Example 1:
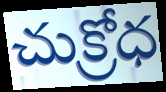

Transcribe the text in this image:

చుక్రోధ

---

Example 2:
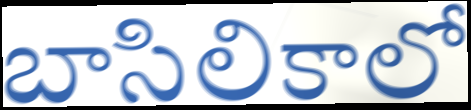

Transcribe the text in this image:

బాసిలికాలో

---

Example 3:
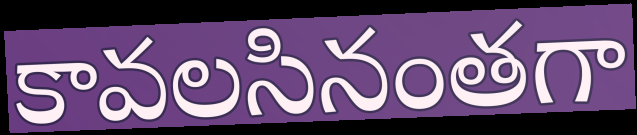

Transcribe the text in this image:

కావలసినంతగా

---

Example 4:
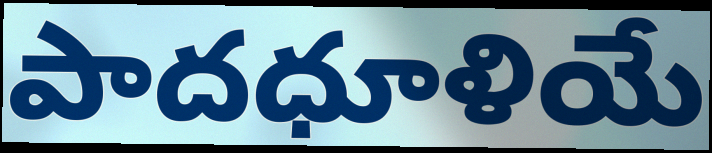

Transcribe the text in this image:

పాదధూళియే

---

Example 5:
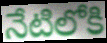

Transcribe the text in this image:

నేటిలోకి